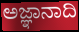
ಅಜ್ಞಾನಾದಿ